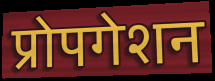
प्रोपगेशन